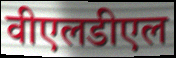
वीएलडीएल